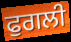
ਫੁਗਲੀ